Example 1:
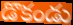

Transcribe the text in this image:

డొకండు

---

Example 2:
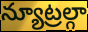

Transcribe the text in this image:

న్యూట్రల్గా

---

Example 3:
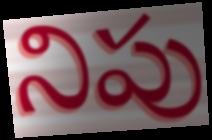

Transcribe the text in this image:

నిపు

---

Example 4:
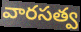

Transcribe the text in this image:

వారసత్వ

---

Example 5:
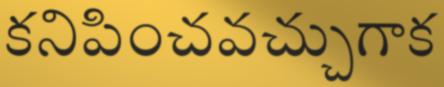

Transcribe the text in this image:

కనిపించవచ్చుగాక